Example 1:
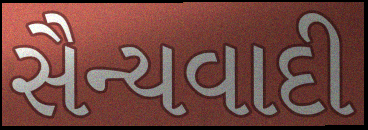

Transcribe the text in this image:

સૈન્યવાદી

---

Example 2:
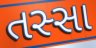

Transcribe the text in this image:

તસ્સા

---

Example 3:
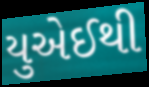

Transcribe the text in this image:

યુએઈથી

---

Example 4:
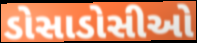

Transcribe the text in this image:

ડોસાડોસીઓ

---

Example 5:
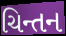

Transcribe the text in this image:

ચિન્તન